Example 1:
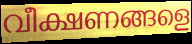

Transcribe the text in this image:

വീക്ഷണങ്ങളെ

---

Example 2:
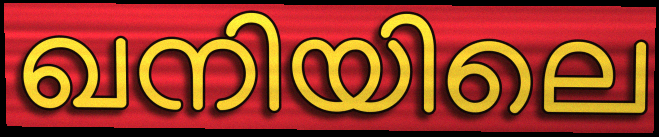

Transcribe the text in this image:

ഖനിയിലെ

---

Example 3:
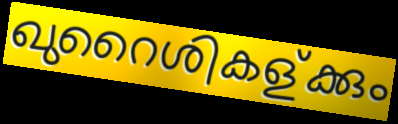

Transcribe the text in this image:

ഖുറൈശികള്ക്കും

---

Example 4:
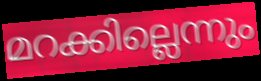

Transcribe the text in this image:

മറക്കില്ലെന്നും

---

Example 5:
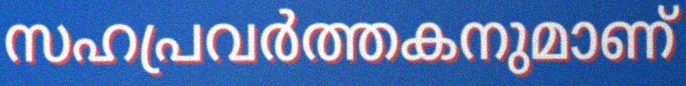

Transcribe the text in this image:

സഹപ്രവർത്തകനുമാണ്